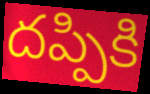
దప్పికి